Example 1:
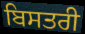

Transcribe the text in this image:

ਬਿਸਤਰੀ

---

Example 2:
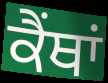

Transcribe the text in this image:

ਕੈਂਥਾਂ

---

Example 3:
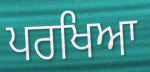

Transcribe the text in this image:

ਪਰਖਿਆ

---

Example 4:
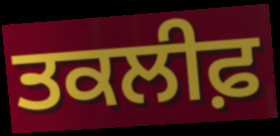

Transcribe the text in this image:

ਤਕਲੀਫ਼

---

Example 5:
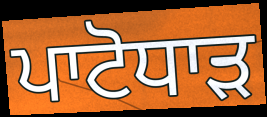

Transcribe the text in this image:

ਪਾਟੋਧਾੜ